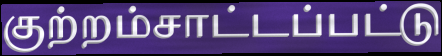
குற்றம்சாட்டப்பட்டு